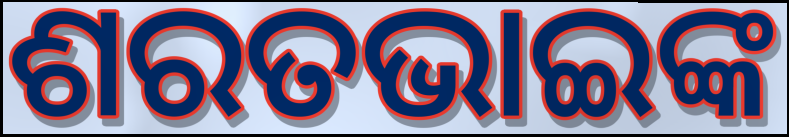
ଶରତଭାଇଙ୍କ